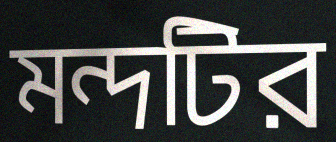
মন্দটির